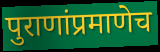
पुराणांप्रमाणेच